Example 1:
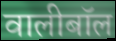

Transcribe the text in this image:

वालीबॉल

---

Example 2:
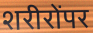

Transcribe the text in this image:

शरीरोंपर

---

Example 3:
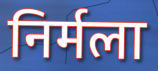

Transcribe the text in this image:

निर्मला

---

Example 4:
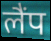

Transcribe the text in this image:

लैंप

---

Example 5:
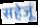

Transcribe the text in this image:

सहेजूं